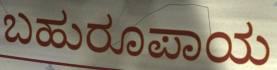
ಬಹುರೂಪಾಯ